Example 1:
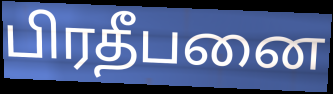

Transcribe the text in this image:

பிரதீபனை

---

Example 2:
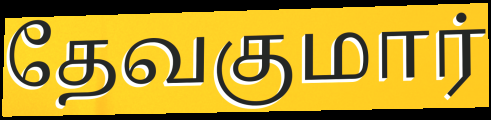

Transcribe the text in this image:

தேவகுமார்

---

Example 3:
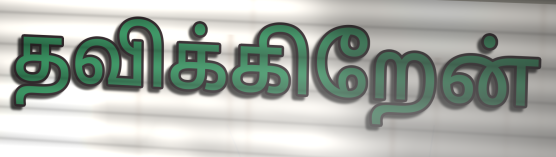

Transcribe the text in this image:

தவிக்கிறேன்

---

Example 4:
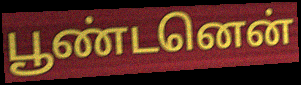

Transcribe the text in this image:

பூண்டனென்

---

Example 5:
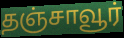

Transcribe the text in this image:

தஞ்சாவூர்